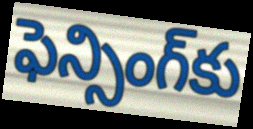
ఫెన్సింగ్‌కు